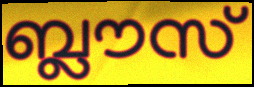
ബ്ലൗസ്